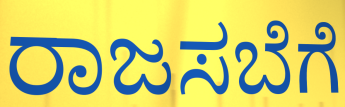
ರಾಜಸಬೆಗೆ